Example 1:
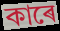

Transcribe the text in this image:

কাৰে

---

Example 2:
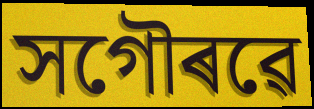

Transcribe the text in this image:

সগৌৰৱে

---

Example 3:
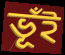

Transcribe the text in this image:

ভূঁই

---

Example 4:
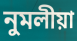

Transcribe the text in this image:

নুমলীয়া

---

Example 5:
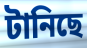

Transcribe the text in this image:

টানিছে